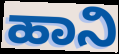
ಹಾನಿ